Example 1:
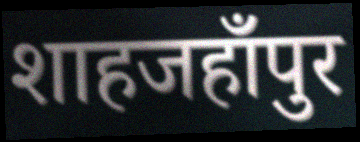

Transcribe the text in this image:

शाहजहाँपुर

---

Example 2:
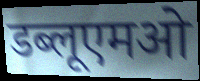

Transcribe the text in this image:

डब्लूएमओ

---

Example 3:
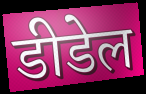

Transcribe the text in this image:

डीडेल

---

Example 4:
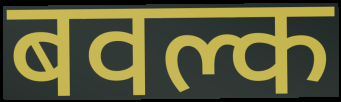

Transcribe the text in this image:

बवल्क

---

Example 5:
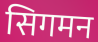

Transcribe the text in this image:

सिगमन